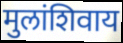
मुलांशिवाय